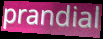
prandial